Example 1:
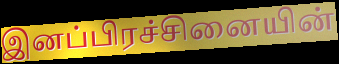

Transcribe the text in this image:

இனப்பிரச்சினையின்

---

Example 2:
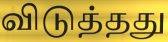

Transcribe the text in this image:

விடுத்தது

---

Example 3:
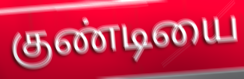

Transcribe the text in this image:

குண்டியை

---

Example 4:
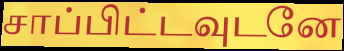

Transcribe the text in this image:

சாப்பிட்டவுடனே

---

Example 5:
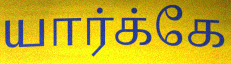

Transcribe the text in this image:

யார்க்கே